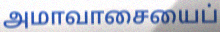
அமாவாசையைப்